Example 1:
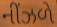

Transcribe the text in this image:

નીંઝળે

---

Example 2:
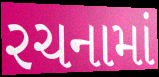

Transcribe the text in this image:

રચનામાં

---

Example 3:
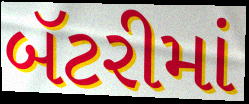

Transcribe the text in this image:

બૅટરીમાં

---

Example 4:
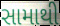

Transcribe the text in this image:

સામાથી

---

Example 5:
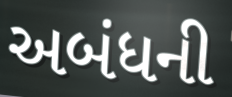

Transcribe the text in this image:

અબંધની